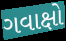
ગવાક્ષો